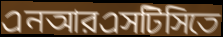
এনআরএসটিসিতে